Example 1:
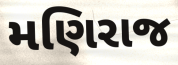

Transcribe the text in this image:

મણિરાજ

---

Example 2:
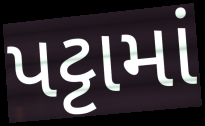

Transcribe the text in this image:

પટ્ટામાં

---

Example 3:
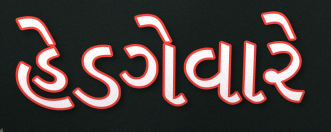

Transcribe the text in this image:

હેડગેવારે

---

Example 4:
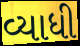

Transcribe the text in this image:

વ્યાધી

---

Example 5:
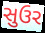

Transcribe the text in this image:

સુઉર